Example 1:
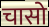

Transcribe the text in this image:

चासो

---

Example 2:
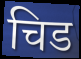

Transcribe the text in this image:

चिड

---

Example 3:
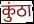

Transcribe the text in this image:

कुंठा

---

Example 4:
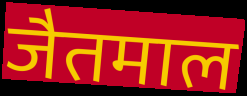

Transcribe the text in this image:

जैतमाल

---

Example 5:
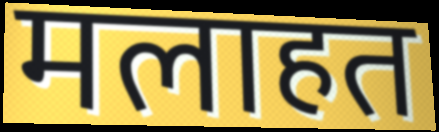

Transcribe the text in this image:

मलाहत